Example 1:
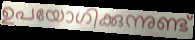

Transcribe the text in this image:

ഉപയോഗിക്കുന്നുണ്ട്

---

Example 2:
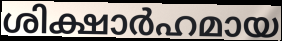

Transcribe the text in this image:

ശിക്ഷാർഹമായ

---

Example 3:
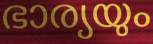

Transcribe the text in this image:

ഭാര്യയും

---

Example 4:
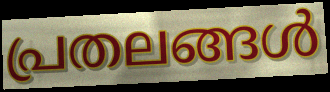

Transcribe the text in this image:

പ്രതലങ്ങൾ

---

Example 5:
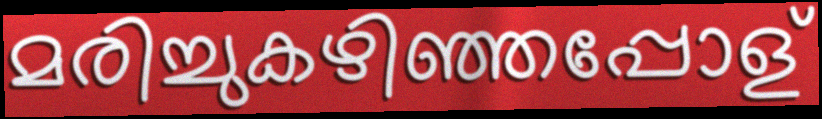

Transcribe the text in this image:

മരിച്ചുകഴിഞ്ഞപ്പോള്